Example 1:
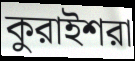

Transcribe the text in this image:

কুরাইশরা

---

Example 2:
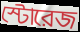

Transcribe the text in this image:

স্টোরেজ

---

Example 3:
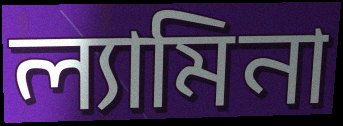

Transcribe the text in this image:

ল্যামিনা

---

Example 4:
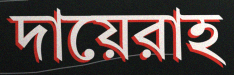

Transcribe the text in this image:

দায়েরাহ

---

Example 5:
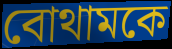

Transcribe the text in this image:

বোথামকে